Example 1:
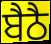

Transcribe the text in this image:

ਬੈਠੈ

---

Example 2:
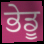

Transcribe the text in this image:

ਭੇਡੂ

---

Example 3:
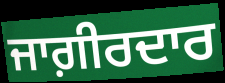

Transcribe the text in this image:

ਜਾਗ਼ੀਰਦਾਰ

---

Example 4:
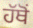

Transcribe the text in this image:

ਹੱਥੋਂ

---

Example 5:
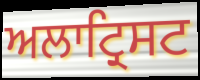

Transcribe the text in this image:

ਅਲਾਟ੍ਰਿਸਟ